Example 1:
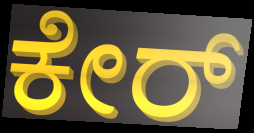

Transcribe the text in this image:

ಕೇರ್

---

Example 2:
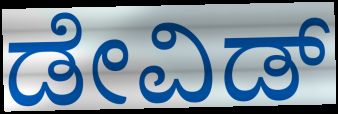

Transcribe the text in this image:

ಡೇವಿಡ್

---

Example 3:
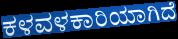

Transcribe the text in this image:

ಕಳವಳಕಾರಿಯಾಗಿದೆ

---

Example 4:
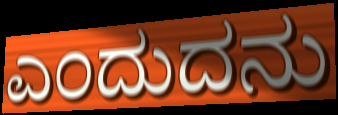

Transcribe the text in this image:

ಎಂದುದನು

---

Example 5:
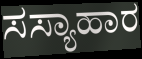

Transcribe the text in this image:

ಸಸ್ಯಾಹಾರ